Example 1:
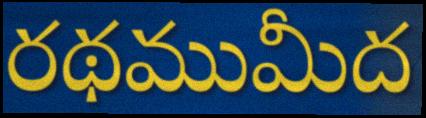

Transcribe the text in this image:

రథముమీద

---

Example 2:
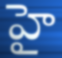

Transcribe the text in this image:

హై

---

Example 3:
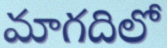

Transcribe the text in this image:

మాగదిలో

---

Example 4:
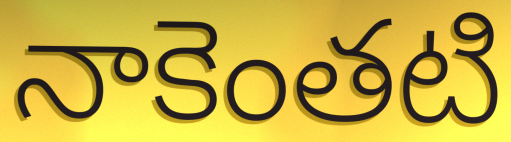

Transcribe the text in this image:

నాకెంతటి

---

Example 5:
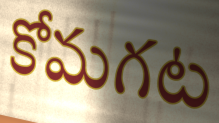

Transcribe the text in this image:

కోమగట